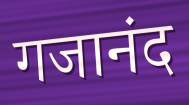
गजानंद